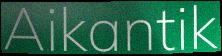
Aikantik